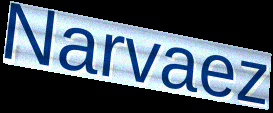
Narvaez